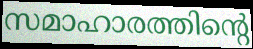
സമാഹാരത്തിന്റെ